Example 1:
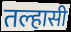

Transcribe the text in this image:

तल्हासी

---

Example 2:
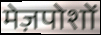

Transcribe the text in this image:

मेज़पोशों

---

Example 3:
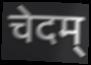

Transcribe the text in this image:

चेदम्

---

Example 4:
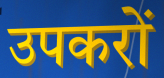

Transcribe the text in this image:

उपकरों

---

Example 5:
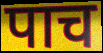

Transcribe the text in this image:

पाच